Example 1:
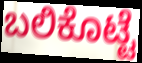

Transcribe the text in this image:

ಬಲಿಕೊಟ್ಟೆ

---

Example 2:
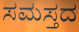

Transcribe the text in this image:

ಸಮಸ್ತದ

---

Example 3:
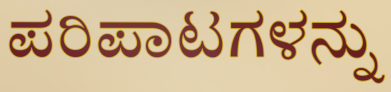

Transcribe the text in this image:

ಪರಿಪಾಟಗಳನ್ನು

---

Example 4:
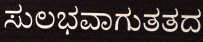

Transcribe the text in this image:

ಸುಲಭವಾಗುತತದ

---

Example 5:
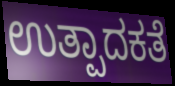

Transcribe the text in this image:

ಉತ್ಪಾದಕತೆ